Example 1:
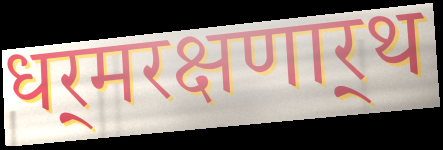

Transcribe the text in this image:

धर्मरक्षणार्थ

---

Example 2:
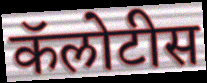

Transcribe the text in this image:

कॅलोटीस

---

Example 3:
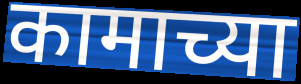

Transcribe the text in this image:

कामाच्या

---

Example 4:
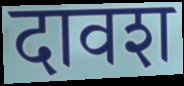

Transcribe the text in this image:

दावश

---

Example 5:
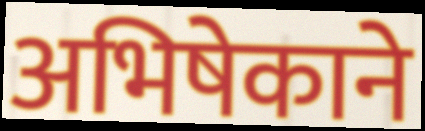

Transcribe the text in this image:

अभिषेकाने